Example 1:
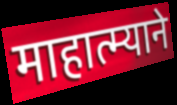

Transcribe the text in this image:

माहात्म्याने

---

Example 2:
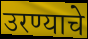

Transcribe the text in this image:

उरण्याचे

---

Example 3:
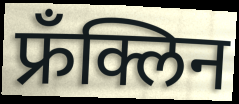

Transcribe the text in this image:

फ्रँक्लिन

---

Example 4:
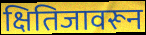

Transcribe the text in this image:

क्षितिजावरून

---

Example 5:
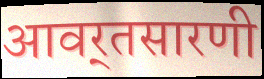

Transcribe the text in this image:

आवर्तसारणी